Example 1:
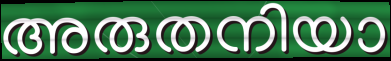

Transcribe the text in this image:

അരുതനിയാ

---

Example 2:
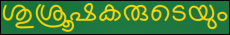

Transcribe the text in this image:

ശുശ്രൂഷകരുടെയും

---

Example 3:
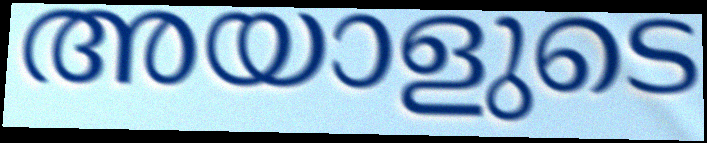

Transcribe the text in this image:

അയാളുടെ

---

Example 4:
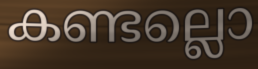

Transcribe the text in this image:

കണ്ടല്ലൊ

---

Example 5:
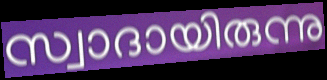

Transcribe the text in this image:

സ്വാദായിരുന്നു